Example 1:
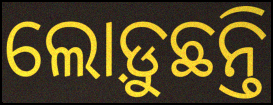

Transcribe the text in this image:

ଲୋଡ଼ୁଛନ୍ତି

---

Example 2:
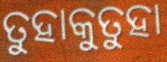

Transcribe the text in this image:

ତୁହାକୁତୁହା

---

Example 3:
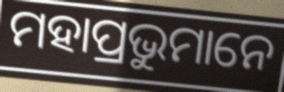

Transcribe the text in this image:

ମହାପ୍ରଭୁମାନେ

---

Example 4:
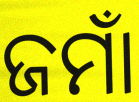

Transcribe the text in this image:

ଜମାଁ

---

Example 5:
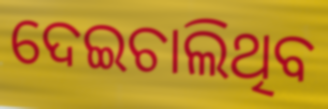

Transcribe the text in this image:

ଦେଇଚାଲିଥିବ